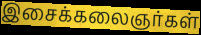
இசைக்கலைஞர்கள்